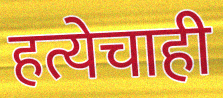
हत्येचाही